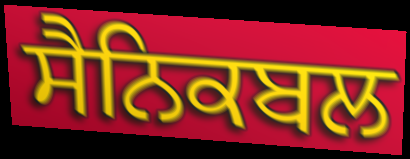
ਸੈਨਿਕਬਲ